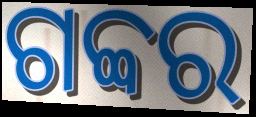
ଗବ୍ବର